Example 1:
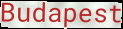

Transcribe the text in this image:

Budapest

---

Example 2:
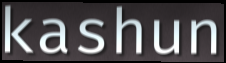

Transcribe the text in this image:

kashun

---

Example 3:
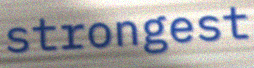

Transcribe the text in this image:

strongest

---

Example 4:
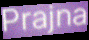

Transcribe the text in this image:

Prajna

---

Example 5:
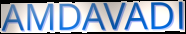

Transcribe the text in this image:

AMDAVADI